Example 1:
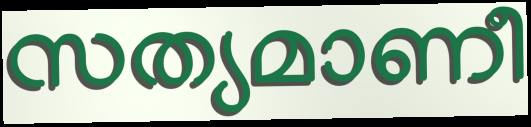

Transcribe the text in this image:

സത്യമാണീ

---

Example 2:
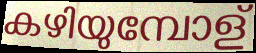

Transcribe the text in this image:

കഴിയുമ്പോള്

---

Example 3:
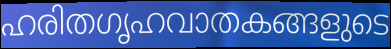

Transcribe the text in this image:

ഹരിതഗൃഹവാതകങ്ങളുടെ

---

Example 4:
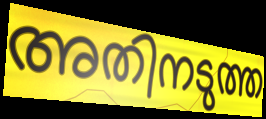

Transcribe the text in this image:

അതിനടുത്ത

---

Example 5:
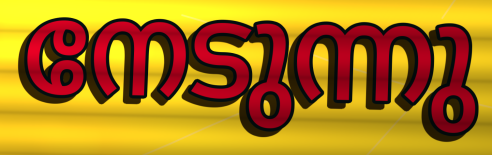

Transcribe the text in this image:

നേടുന്നു